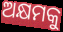
ଅକ୍ଷମକୁ